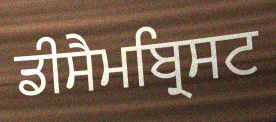
ਡੀਸੈਮਬ੍ਰਿਸਟ